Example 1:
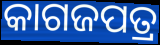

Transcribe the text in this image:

କାଗଜପତ୍ର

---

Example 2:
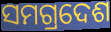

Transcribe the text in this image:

ସମଗ୍ରଦେଶ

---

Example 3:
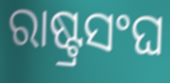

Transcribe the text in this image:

ରାଷ୍ଟ୍ରସଂଘ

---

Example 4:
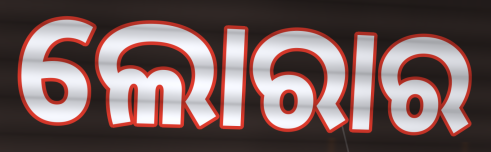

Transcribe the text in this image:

ଲୋରାର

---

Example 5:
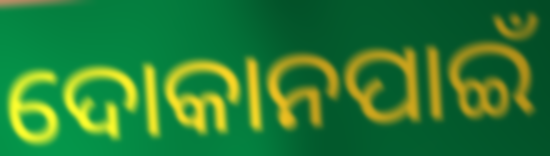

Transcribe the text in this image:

ଦୋକାନପାଇଁ